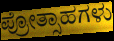
ಪ್ರೋತ್ಸಾಹಗಳು